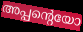
അപ്പന്റെയോ